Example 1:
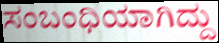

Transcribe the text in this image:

ಸಂಬಂಧಿಯಾಗಿದ್ದು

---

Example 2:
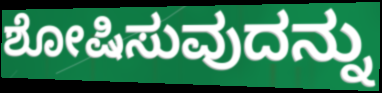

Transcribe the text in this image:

ಶೋಷಿಸುವುದನ್ನು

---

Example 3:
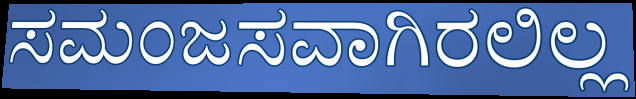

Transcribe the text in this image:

ಸಮಂಜಸವಾಗಿರಲಿಲ್ಲ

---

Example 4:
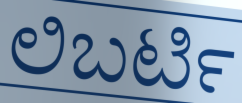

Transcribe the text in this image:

ಲಿಬರ್ಟಿ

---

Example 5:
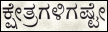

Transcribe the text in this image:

ಕ್ಷೇತ್ರಗಳಿಗಷ್ಟೇ